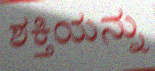
ಶಕ್ತಿಯನ್ನು